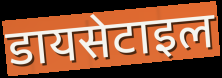
डायसेटाइल